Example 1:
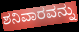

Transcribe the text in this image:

ಶನಿವಾರವನ್ನು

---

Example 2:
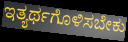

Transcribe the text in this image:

ಇತ್ಯರ್ಥಗೊಳಿಸಬೇಕು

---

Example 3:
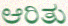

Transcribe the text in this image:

ಆರಿತು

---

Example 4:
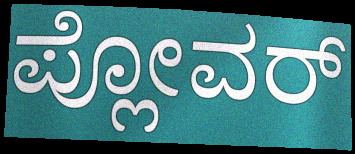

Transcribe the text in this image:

ಪ್ಲೋವರ್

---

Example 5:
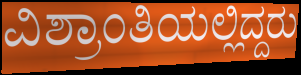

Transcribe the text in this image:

ವಿಶ್ರಾಂತಿಯಲ್ಲಿದ್ದರು